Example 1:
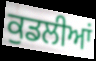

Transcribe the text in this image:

ਕੁਡਲੀਆਂ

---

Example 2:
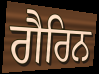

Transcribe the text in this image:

ਗੈਰਿਨ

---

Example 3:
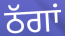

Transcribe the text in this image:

ਠੱਗਾਂ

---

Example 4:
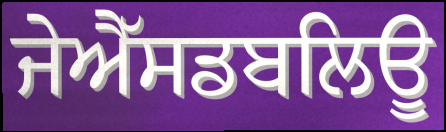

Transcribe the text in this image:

ਜੇਐੱਸਡਬਲਿਊ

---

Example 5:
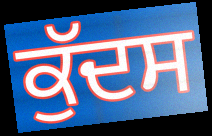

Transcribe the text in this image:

ਕੁੱਦਸ